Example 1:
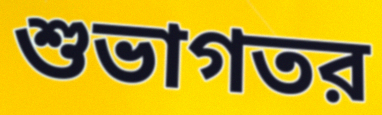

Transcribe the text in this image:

শুভাগতর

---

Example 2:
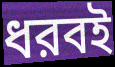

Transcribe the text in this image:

ধরবই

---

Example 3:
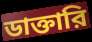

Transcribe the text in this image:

ডাক্তারি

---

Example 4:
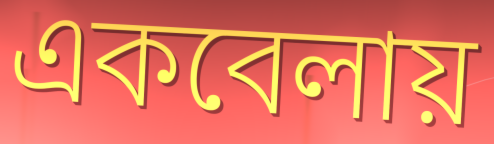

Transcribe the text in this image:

একবেলায়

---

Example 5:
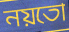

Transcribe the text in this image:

নয়তো